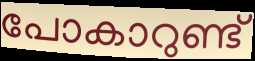
പോകാറുണ്ട്